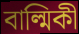
বাল্মিকী